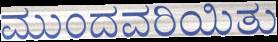
ಮುಂದವರಿಯಿತು